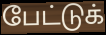
பேட்டுக்